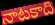
నాటకాది